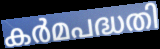
കർമപദ്ധതി